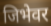
जिभेवर